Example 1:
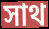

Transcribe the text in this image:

সাথ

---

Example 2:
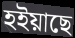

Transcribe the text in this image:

হইয়াছে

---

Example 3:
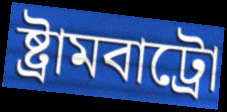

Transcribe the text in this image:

ষ্ট্ৰামবাট্ৰো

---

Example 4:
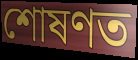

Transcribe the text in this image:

শোষণত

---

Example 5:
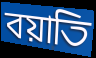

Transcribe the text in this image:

বয়াতি